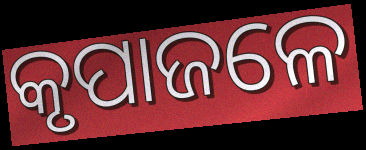
କୃପାଜଳେ